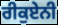
ਰੀਕੁਏਨੀ